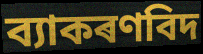
ব্যাকৰণবিদ